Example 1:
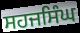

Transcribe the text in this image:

ਸਹਜਸਿੰਘ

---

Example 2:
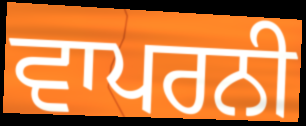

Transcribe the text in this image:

ਵਾਪਰਨੀ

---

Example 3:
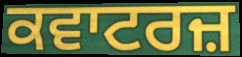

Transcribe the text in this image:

ਕਵਾਟਰਜ਼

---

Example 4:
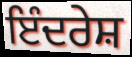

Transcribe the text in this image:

ਇੰਦਰੇਸ਼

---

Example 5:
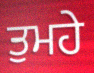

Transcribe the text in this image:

ਤੁਮਹੇ